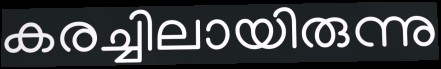
കരച്ചിലായിരുന്നു